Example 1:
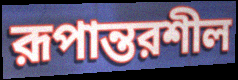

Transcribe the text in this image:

রূপান্তরশীল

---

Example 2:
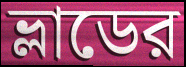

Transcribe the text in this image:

ভ্লাডের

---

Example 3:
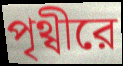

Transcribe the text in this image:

পৃথ্বীরে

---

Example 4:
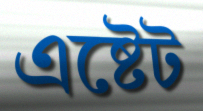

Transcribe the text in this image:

এষ্টেট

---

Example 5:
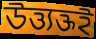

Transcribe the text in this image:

উত্ত্যক্তই